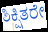
ಶಿಕ್ಷಿತರೇ